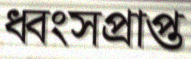
ধ্বংসপ্রাপ্ত